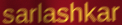
sarlashkar